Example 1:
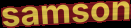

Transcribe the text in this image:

samson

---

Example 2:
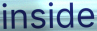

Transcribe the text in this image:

inside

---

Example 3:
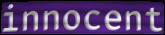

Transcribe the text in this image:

innocent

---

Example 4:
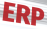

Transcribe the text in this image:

ERP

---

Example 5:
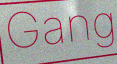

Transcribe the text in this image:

Gang